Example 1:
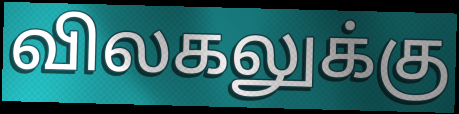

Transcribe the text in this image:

விலகலுக்கு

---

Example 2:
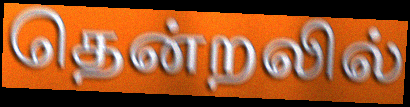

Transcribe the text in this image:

தென்றலில்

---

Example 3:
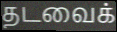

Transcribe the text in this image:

தடவைக்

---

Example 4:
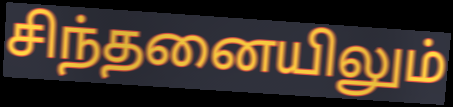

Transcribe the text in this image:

சிந்தனையிலும்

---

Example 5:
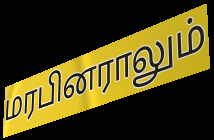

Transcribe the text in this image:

மரபினராலும்